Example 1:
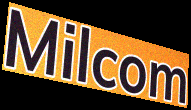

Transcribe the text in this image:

Milcom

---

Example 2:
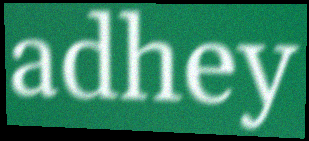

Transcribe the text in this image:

adhey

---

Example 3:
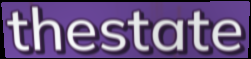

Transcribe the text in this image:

thestate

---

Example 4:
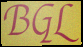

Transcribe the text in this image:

BGL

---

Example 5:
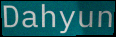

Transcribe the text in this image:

Dahyun